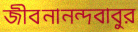
জীবনানন্দবাবুর